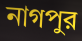
নাগপুর